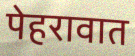
पेहरावात